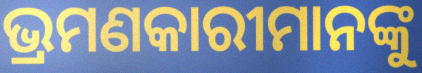
ଭ୍ରମଣକାରୀମାନଙ୍କୁ